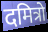
दमित्रो